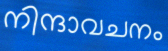
നിന്ദാവചനം